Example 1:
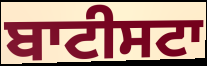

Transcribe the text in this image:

ਬਾਟੀਸਟਾ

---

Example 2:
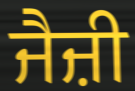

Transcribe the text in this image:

ਜੈਜ਼ੀ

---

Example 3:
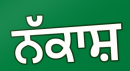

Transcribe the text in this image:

ਨੱਕਾਸ਼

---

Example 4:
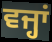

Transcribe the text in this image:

ਵਜ੍ਹਾਂ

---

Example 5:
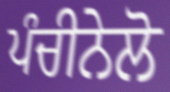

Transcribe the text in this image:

ਪੰਚੀਨੇਲੋ